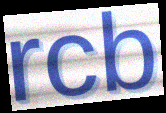
rcb